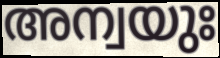
അന്വയുഃ